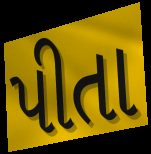
પીતા